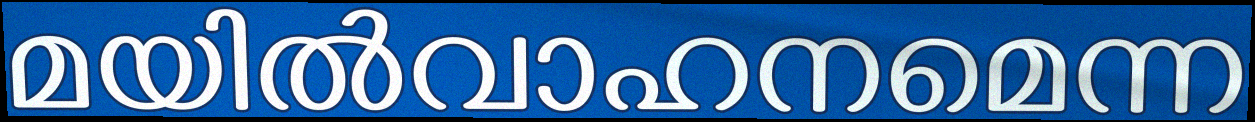
മയിൽവാഹനമെന്ന